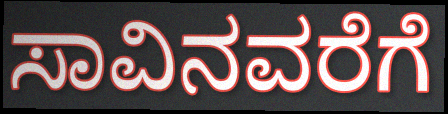
ಸಾವಿನವರೆಗೆ